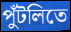
পুঁটলিতে